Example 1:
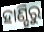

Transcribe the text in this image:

ହାଣ୍ଡିରୁ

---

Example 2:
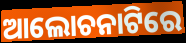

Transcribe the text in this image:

ଆଲୋଚନାଟିରେ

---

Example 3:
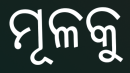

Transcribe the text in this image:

ମୂଳକୁ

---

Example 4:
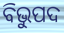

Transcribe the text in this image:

ବିଭୁପଦ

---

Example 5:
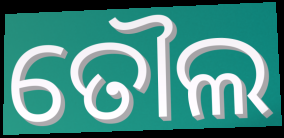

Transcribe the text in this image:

ତୌଲ